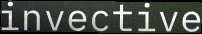
invective